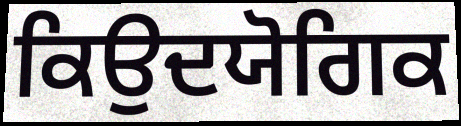
ਕਿਉਦਯੋਗਿਕ